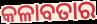
କଳାବତାର